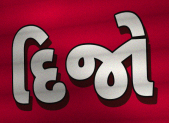
દિજો